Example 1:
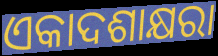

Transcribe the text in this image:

ଏକାଦଶାକ୍ଷରା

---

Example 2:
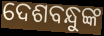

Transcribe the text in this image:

ଦେଶବନ୍ଧୁଙ୍କ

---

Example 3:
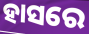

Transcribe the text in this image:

ହାସରେ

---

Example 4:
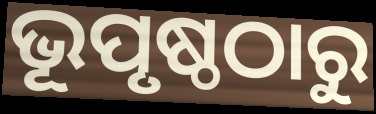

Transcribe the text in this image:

ଭୂପୃଷ୍ଠଠାରୁ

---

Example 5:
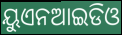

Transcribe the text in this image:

ୟୁଏନଆଇଡିଓ